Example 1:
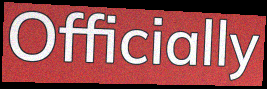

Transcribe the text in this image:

Officially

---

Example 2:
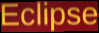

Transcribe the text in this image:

Eclipse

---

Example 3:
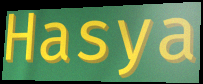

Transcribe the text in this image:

Hasya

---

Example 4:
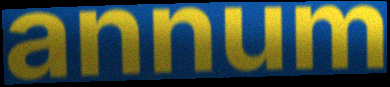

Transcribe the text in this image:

annum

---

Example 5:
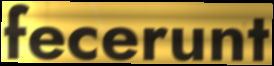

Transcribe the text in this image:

fecerunt